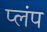
प्लंप